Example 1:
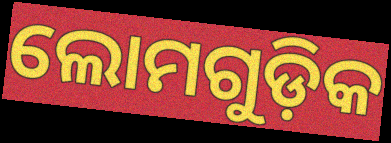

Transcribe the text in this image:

ଲୋମଗୁଡ଼ିକ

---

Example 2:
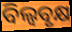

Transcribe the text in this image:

ବିଲ୍ୱବୃକ୍ଷ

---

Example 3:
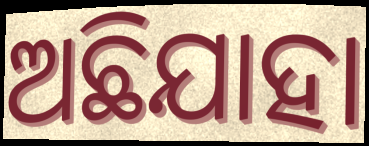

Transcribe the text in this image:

ଅଛିଯାହା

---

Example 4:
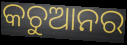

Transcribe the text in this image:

କଚୁଆନର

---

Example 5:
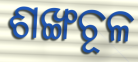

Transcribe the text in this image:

ଶଙ୍ଖଚୂଳ